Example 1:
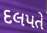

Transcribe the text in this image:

દલપતે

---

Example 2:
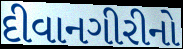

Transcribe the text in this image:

દીવાનગીરીનો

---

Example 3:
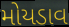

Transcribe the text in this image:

મોયડાવ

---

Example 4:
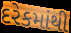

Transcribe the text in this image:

દરેકમાંથી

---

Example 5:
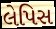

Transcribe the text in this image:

લેપિસ